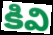
కివి